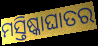
ମସ୍ତିଷ୍କାଘାତର